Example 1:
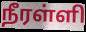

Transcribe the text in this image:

நீரள்ளி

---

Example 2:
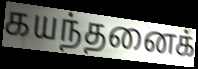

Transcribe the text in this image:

கயந்தனைக்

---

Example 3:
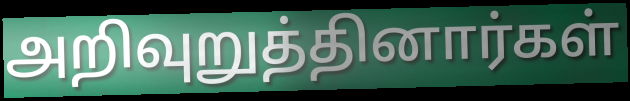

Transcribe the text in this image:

அறிவுறுத்தினார்கள்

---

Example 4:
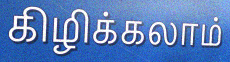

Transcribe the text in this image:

கிழிக்கலாம்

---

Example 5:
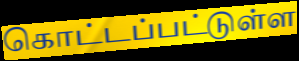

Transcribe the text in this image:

கொட்டப்பட்டுள்ள